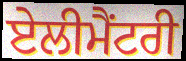
ਏਲੀਮੈਂਟਰੀ